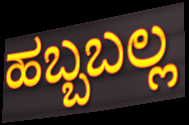
ಹಬ್ಬಬಲ್ಲ